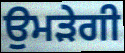
ਉਮੜੇਗੀ